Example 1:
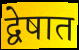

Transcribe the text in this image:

द्वेषात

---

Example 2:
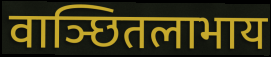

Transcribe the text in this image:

वाञ्छितलाभाय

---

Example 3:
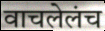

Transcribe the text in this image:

वाचलेलंच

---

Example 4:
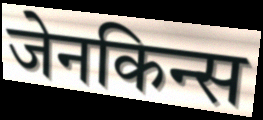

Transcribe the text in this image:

जेनकिन्स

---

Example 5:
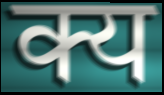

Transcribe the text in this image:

क्य